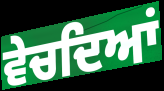
ਵੇਚਦਿਆਂ